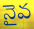
నైవ